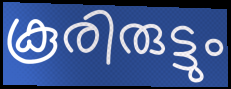
കൂരിരുട്ടും